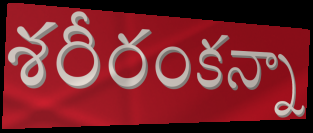
శరీరంకన్నా